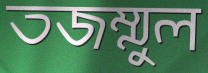
তজম্মুল